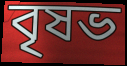
বৃষভ